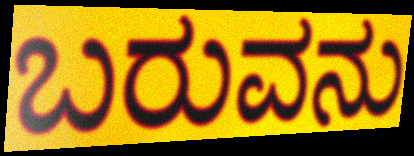
ಬರುವನು